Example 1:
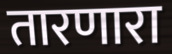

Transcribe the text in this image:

तारणारा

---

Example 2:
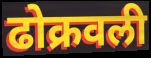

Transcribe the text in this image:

ढोक्रवली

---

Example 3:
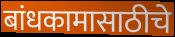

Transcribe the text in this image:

बांधकामासाठीचे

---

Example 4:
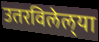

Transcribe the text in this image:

उतरविलेल्या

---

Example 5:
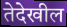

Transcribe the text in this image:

तेदेखील